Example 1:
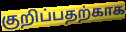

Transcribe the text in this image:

குறிப்பதற்காக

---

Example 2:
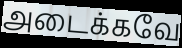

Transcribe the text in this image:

அடைக்கவே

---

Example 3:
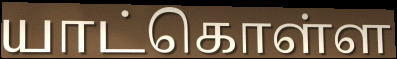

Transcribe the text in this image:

யாட்கொள்ள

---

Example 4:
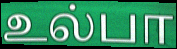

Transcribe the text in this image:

உல்பா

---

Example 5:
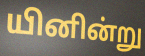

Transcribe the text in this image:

யினின்று